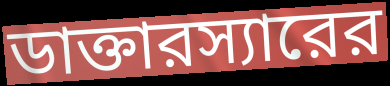
ডাক্তারস্যারের